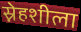
स्नेहशीला